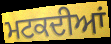
ਮਟਕਦੀਆਂ